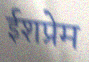
ईशप्रेम